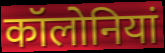
कॉलोनियां